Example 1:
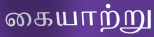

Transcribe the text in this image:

கையாற்று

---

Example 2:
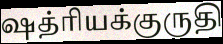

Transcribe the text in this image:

ஷத்ரியக்குருதி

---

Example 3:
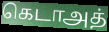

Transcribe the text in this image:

கெடாஅத்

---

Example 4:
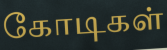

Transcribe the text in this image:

கோடிகள்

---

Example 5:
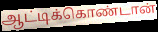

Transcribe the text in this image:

ஆட்டிக்கொண்டான்